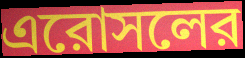
এরোসলের